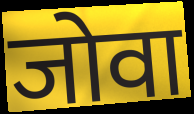
जोवा